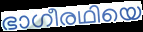
ഭാഗീരഥിയെ